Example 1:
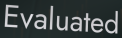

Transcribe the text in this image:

Evaluated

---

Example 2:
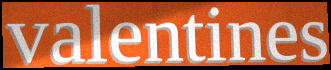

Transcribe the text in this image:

valentines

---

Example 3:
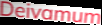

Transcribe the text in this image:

Deivamum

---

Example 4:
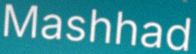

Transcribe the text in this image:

Mashhad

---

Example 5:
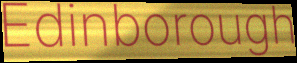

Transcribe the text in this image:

Edinborough